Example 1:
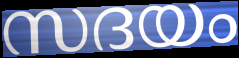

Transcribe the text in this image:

സദയം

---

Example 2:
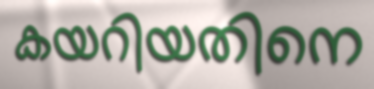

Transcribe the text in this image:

കയറിയതിനെ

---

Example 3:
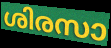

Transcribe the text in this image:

ശിരസാ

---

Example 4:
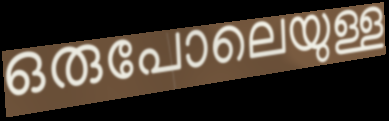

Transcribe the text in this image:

ഒരുപോലെയുള്ള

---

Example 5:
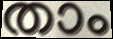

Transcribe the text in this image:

താം